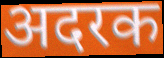
अदरक